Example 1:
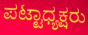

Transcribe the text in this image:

ಪಟ್ಟಾಧ್ಯಕ್ಷರು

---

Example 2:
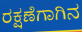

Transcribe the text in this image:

ರಕ್ಷಣೆಗಾಗಿನ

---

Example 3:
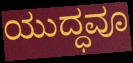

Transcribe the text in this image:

ಯುದ್ಧವೂ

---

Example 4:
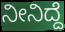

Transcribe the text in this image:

ನೀನಿದ್ದೆ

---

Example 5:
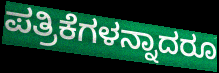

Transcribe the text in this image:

ಪತ್ರಿಕೆಗಳನ್ನಾದರೂ